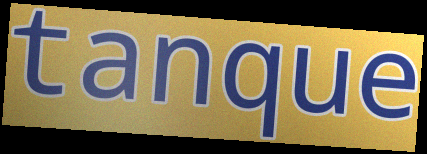
tanque